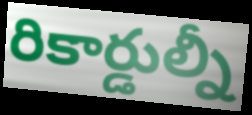
రికార్డుల్నీ